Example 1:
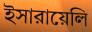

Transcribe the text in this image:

ইসারায়েলি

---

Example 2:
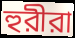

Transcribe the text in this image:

হুরীরা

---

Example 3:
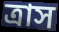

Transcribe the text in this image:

ত্রাস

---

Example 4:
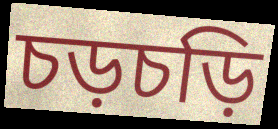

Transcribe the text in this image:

চড়চড়ি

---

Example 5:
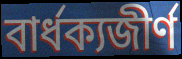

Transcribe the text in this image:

বার্ধক্যজীর্ণ